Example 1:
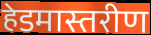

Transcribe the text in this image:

हेडमास्तरीण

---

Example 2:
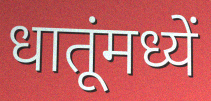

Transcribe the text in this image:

धातूंमध्यें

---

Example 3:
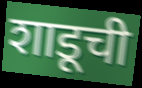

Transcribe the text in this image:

शाडूची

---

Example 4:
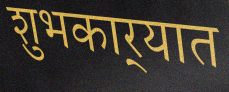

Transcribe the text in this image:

शुभकार्यात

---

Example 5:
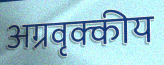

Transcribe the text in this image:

अग्रवृक्कीय